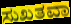
ಸುಖತವಾ